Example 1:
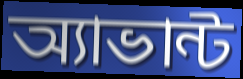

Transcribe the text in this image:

অ্যাভান্ট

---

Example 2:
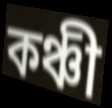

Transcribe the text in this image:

কঞ্চী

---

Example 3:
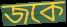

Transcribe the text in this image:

জকে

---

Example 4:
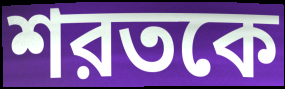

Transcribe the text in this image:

শরতকে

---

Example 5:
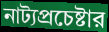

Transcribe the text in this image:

নাট্যপ্রচেষ্টার